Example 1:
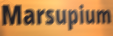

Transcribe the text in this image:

Marsupium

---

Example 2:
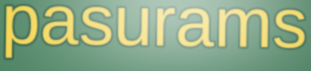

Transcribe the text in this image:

pasurams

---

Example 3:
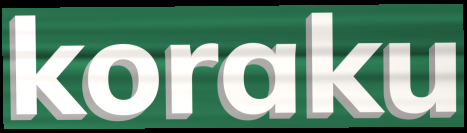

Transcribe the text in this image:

koraku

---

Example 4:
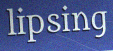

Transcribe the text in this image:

lipsing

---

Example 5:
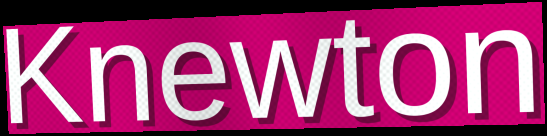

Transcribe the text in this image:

Knewton